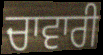
ਚਾਵਾਰੀ